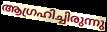
ആഗ്രഹിച്ചിരുന്നു